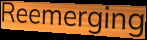
Reemerging